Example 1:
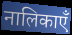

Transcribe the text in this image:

नालिकाएँ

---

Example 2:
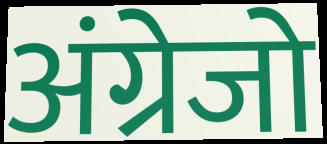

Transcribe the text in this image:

अंग्रेजो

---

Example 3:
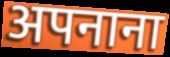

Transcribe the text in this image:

अपनाना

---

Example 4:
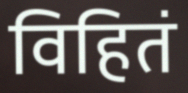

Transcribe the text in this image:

विहितं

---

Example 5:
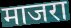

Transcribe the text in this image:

माजरा